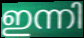
ഇന്നി